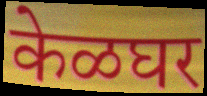
केळघर